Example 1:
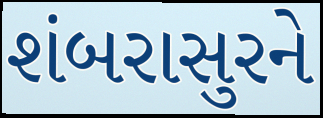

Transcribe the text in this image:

શંબરાસુરને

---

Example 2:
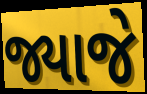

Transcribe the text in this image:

જ્યાજે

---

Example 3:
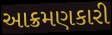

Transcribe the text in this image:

આક્રમણકારી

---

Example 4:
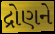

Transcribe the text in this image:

દ્રોણને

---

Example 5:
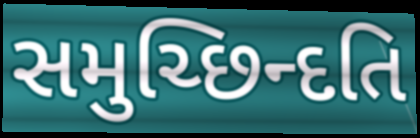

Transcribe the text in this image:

સમુચ્છિન્દતિ